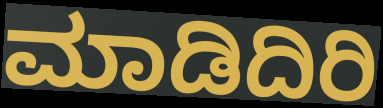
ಮಾಡಿದಿರಿ